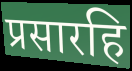
प्रसारहि